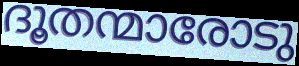
ദൂതന്മാരോടു